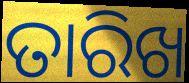
ତାରିଖ